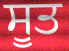
ਸੂਤ